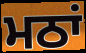
ਮਠਾਂ